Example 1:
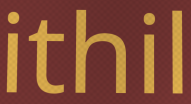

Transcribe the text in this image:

ithil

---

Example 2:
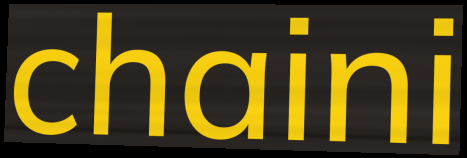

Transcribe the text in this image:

chaini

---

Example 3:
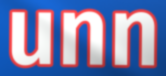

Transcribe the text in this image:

unn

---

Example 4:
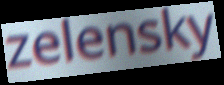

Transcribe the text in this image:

zelensky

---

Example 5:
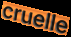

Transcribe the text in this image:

cruelle